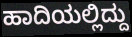
ಹಾದಿಯಲ್ಲಿದ್ದು